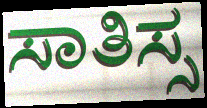
ಸಾತಿಸ್ಸ